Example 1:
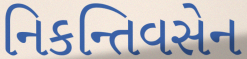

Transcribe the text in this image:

નિકન્તિવસેન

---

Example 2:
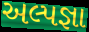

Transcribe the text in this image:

અલ્પજ્ઞા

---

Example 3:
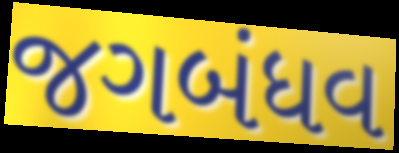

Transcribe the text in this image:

જગબંધવ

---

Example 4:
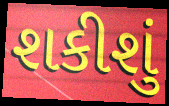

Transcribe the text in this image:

શકીશું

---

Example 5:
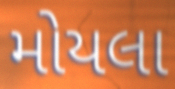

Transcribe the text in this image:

મોયલા